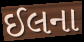
ઈલના